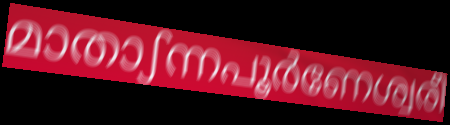
മാതാഽന്നപൂർണേശ്വരീ